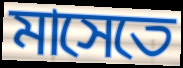
মাসেতে